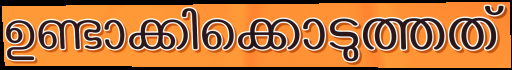
ഉണ്ടാക്കിക്കൊടുത്തത്